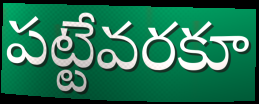
పట్టేవరకూ